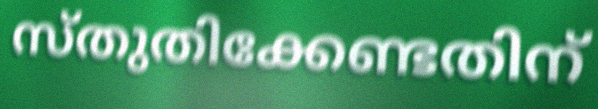
സ്തുതിക്കേണ്ടതിന്